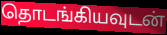
தொடங்கியவுடன்